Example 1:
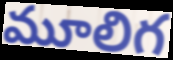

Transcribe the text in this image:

మూలిగ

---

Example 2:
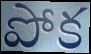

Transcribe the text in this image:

పోక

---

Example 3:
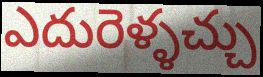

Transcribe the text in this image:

ఎదురెళ్ళచ్చు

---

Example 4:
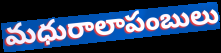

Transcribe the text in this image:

మధురాలాపంబులు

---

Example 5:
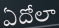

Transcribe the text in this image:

ఏదోలా